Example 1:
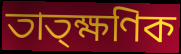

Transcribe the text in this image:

তাত্ক্ষণিক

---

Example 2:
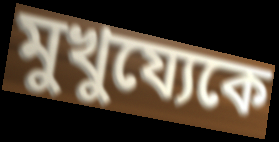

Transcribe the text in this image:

মুখুয্যেকে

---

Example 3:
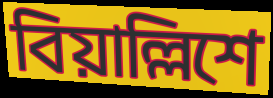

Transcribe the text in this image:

বিয়াল্লিশে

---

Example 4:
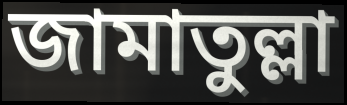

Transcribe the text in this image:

জামাতুল্লা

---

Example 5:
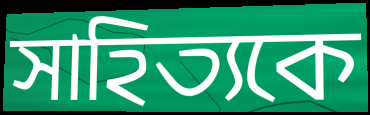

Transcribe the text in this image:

সাহিত্যকে